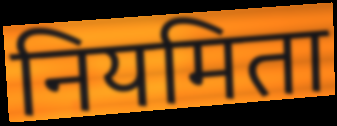
नियमिता